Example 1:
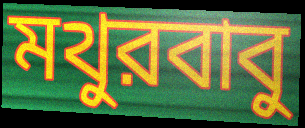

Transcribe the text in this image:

মথুরবাবু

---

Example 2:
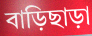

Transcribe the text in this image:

বাড়িছাড়া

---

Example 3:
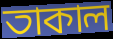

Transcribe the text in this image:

তাকাল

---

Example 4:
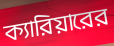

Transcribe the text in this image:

ক্যারিয়ারের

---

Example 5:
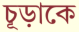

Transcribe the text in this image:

চূড়াকে